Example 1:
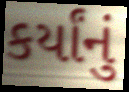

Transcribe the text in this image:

કર્યાંનું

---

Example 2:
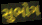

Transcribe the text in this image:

સુભોગ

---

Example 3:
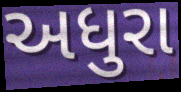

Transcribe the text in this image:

અધુરા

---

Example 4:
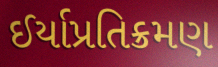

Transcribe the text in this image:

ઈર્યાપ્રતિક્રમણ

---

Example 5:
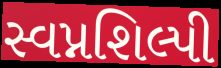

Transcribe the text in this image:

સ્વપ્નશિલ્પી